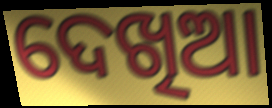
ଦେଖିଆ